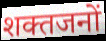
शक्तजनों